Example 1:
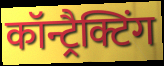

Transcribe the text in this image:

कॉन्ट्रैक्टिंग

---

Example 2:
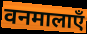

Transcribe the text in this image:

वनमालाएँ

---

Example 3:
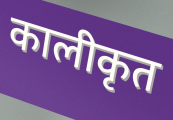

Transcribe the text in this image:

कालीकृत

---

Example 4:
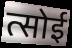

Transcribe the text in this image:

त्सोई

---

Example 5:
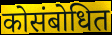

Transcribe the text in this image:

कोसंबोधित